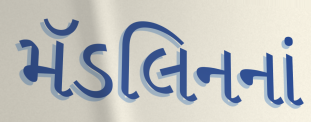
મૅડલિનનાં